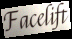
Facelift